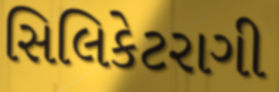
સિલિકેટરાગી